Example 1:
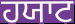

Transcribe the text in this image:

ਹਯਾਟ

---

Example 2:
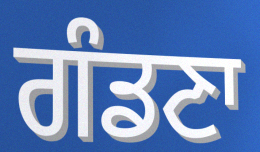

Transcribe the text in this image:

ਗੰਡਣਾ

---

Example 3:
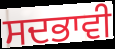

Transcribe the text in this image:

ਸਦਭਾਵੀ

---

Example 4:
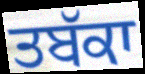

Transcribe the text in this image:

ਤਬੱਕਾ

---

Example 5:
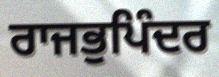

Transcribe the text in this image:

ਰਾਜਭੁਪਿੰਦਰ